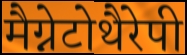
मैग्नेटोथैरेपी